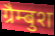
ग्रैम्बुश